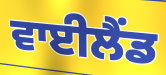
ਵਾਈਲੈਂਡ